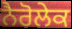
ਨੈਰੋਲੇਕ